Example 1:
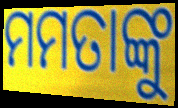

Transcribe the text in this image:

ମମତାଙ୍କୁ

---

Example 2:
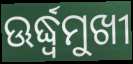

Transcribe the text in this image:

ଊର୍ଦ୍ଧ୍ବମୁଖୀ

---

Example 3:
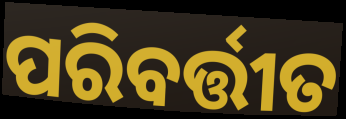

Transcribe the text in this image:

ପରିବର୍ତ୍ତୀତ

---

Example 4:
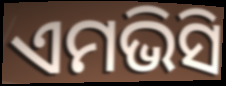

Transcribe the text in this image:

ଏମଭିସି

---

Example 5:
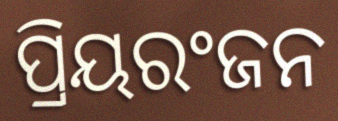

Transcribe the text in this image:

ପ୍ରିୟରଂଜନ